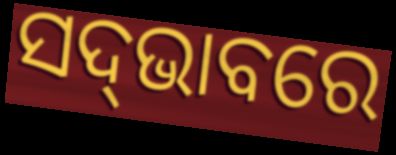
ସଦ୍‌ଭାବରେ